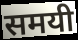
समयी